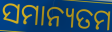
ସମାନ୍ୟତମ